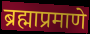
ब्रह्माप्रमाणे